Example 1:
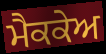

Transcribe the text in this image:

ਮੈਕਕੇਅ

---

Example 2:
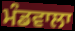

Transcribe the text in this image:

ਮੰਡਵਾਲਾ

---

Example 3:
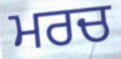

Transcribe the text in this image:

ਮਰਚ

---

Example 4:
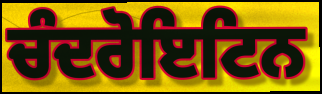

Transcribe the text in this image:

ਚੰਦਰੋਇਟਿਨ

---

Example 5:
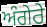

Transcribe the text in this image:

ਅੰਗੇਰੇ